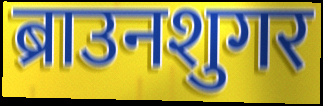
ब्राउनशुगर